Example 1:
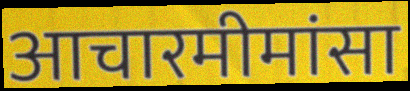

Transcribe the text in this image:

आचारमीमांसा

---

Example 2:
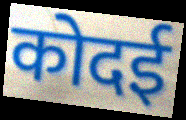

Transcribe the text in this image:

कोदई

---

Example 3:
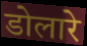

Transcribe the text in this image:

डोलारे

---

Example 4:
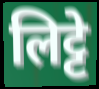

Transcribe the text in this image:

लिट्टे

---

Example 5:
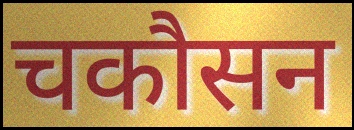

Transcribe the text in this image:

चकौसन